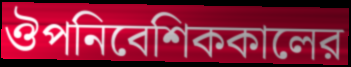
ঔপনিবেশিককালের